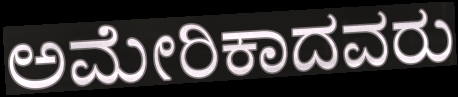
ಅಮೇರಿಕಾದವರು